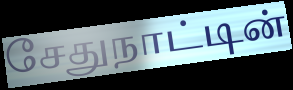
சேதுநாட்டின்